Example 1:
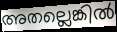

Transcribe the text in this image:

അതല്ലെങ്കിൽ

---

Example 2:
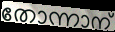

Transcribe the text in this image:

തോന്നാന്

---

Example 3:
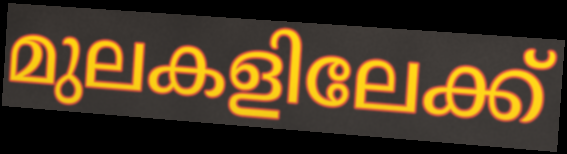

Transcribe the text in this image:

മുലകളിലേക്ക്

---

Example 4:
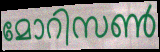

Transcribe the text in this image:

മോറിസൺ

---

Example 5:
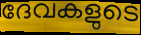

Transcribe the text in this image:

ദേവകളുടെ